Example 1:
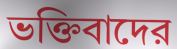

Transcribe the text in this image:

ভক্তিবাদের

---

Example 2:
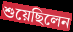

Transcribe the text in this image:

শুয়েছিলেন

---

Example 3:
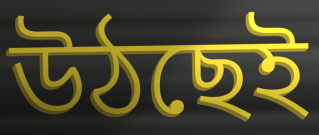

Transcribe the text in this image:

উঠছেই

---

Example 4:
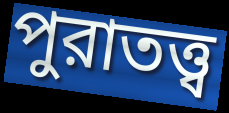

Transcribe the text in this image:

পুরাতত্ত্ব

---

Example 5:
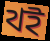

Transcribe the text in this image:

থই